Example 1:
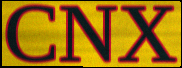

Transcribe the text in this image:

CNX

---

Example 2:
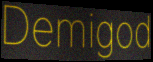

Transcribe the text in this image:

Demigod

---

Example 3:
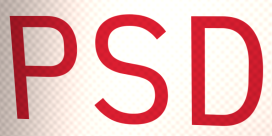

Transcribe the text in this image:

PSD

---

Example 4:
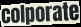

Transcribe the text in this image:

colporate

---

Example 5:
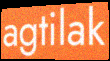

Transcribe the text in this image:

agtilak